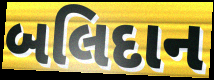
બલિદાન